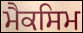
ਮੈਕਸਿਮ